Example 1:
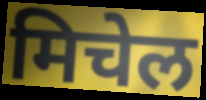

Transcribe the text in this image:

मिचेल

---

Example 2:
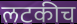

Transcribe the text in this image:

लटकीच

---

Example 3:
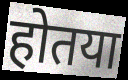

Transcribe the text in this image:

होतया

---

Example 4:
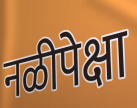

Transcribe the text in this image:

नळीपेक्षा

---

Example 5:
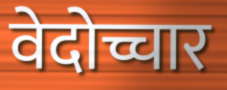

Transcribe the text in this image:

वेदोच्चार